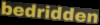
bedridden